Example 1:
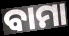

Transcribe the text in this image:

ବାମା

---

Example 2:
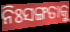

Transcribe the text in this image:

ନିଃସଙ୍ଗତାକୁ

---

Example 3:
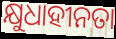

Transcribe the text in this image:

କ୍ଷୁଧାହୀନତା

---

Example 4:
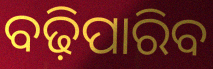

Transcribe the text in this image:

ବଢ଼ିପାରିବ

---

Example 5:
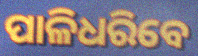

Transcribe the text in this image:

ପାଳିଧରିବେ